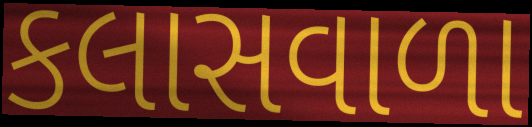
કલાસવાળા